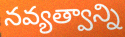
నవ్యత్వాన్ని